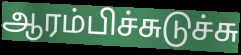
ஆரம்பிச்சுடுச்சு